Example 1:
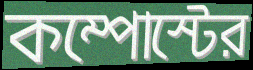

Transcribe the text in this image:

কম্পোস্টের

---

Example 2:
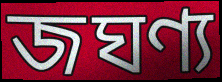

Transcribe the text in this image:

জঘণ্য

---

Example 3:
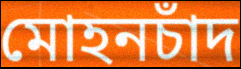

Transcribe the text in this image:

মোহনচাঁদ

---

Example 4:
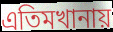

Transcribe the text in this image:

এতিমখানায়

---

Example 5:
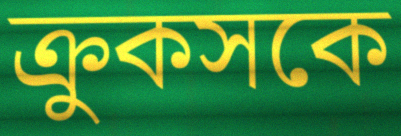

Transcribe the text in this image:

ক্রুকসকে